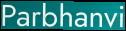
Parbhanvi